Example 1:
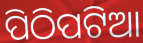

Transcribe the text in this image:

ପିଠିପଟିଆ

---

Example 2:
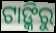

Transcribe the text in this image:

ଟାଙ୍କିରୁ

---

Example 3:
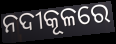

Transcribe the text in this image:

ନଦୀକୂଳରେ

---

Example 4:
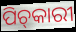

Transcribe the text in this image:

ପିଚ୍‌କାରୀ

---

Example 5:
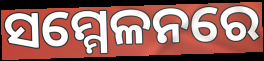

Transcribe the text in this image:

ସମ୍ମେଳନରେ